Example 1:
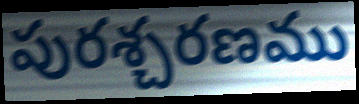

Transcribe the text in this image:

పురశ్చరణము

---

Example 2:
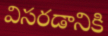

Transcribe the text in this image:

విసరడానికి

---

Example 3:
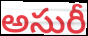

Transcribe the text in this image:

అసురీ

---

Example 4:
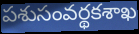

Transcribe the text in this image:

పశుసంవర్థకశాఖ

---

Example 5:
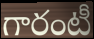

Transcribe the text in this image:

గారంటీ